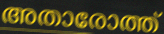
അതാരോത്ത്